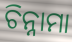
ଚିନ୍ନାମା